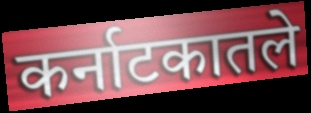
कर्नाटकातले